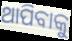
ଥାପିବାକୁ